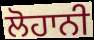
ਲੋਹਾਨੀ